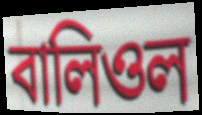
বালিওল